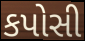
કપોસી